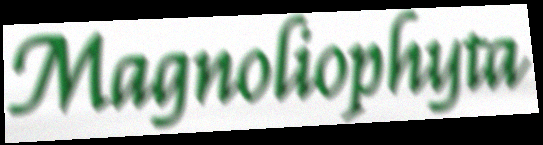
Magnoliophyta